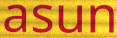
asun